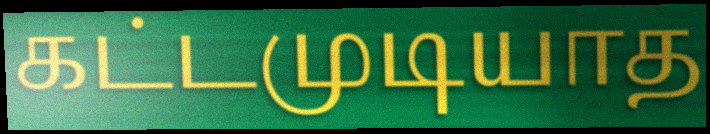
கட்டமுடியாத